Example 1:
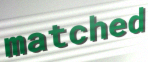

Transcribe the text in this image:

matched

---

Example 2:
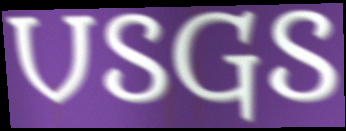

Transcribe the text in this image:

USGS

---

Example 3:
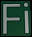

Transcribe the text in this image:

Fi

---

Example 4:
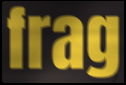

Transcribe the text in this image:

frag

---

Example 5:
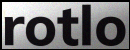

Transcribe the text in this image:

rotlo